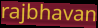
rajbhavan